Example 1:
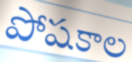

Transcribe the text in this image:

పోషకాల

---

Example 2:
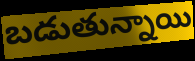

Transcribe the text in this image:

బడుతున్నాయి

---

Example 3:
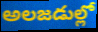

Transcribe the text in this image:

అలజడుల్లో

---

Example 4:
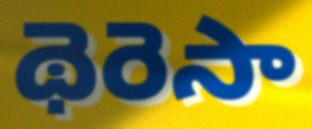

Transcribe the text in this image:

థెరెసా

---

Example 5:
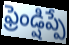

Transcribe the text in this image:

ఫ్రెండ్షిప్పే